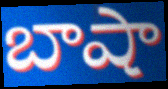
బాషా